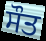
ਸੌਤ